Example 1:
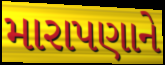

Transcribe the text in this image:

મારાપણાને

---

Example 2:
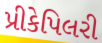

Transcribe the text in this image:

પ્રીકેપિલરી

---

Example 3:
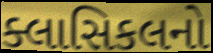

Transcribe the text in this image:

ક્લાસિકલનો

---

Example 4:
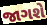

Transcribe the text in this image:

જાગશે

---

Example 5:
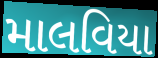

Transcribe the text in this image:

માલવિયા